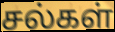
சல்கள்